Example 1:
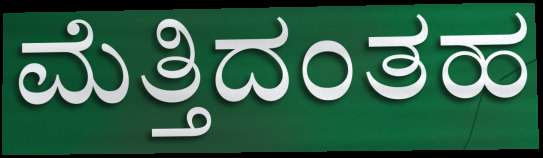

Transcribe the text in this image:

ಮೆತ್ತಿದಂತಹ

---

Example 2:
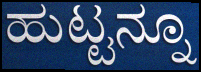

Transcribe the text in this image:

ಹುಟ್ಟನ್ನೂ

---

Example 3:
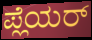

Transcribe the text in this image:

ಪ್ಲೆಯರ್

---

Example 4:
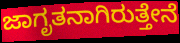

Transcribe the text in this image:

ಜಾಗೃತನಾಗಿರುತ್ತೇನೆ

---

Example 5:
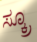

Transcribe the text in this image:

ಸ್ಕ್ರೂ